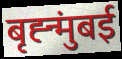
बृह्न्मुंबई